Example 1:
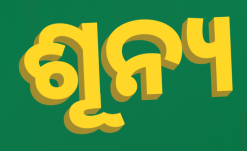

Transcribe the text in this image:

ଶୂନ୍ୟ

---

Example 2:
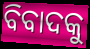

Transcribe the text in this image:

ବିବାଦକୁ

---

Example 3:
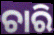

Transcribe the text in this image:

ଚାରି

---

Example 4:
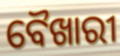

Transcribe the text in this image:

ବୈଖାରୀ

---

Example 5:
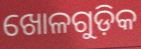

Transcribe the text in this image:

ଖୋଳଗୁଡ଼ିକ